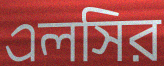
এলসির